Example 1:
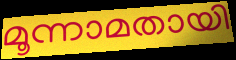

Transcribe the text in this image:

മൂന്നാമതായി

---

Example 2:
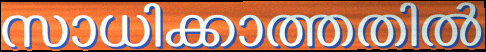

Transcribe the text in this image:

സാധിക്കാത്തതിൽ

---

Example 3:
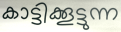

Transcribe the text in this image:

കാട്ടിക്കൂട്ടുന്ന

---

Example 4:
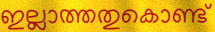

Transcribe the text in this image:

ഇല്ലാത്തതുകൊണ്ട്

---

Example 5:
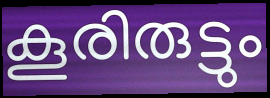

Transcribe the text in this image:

കൂരിരുട്ടും